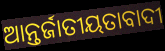
ଆନ୍ତର୍ଜାତୀୟତାବାଦୀ